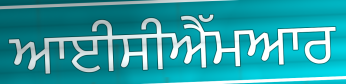
ਆਈਸੀਐੱਮਆਰ